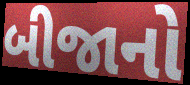
બીજાનો